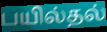
பயில்தல்